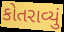
કોતરાવ્યું